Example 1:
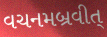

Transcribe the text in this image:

વચનમબ્રવીત્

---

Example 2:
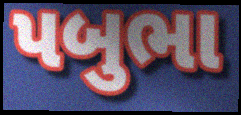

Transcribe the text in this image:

પબુભા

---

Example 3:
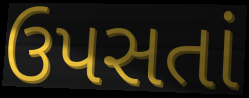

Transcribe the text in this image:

ઉપસતાં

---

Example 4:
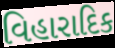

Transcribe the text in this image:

વિહારાદિક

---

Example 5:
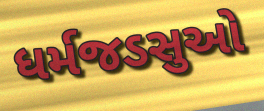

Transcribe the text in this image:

ધર્મજડસુઓ